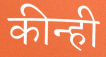
कीन्ही